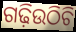
ଗଢ଼ିଉଠିଚି